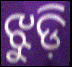
ଝୁଡ଼ି